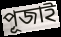
পূজাই